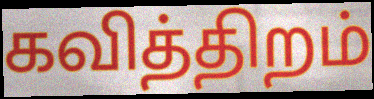
கவித்திறம்